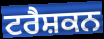
ਟਰੈਸ਼ਕਨ